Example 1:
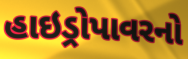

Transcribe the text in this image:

હાઇડ્રોપાવરનો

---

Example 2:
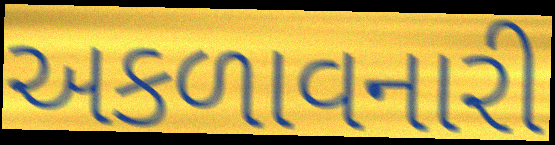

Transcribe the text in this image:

અકળાવનારી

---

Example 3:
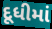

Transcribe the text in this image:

દૂધીમાં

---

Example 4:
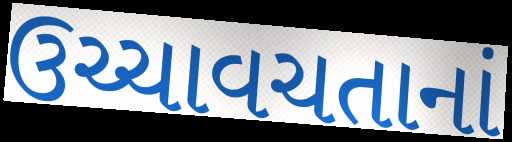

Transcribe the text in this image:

ઉચ્ચાવચતાનાં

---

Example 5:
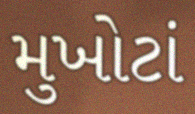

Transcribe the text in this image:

મુખોટાં